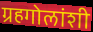
ग्रहगोलांशी